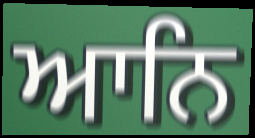
ਆਨਿ